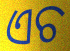
ଏଚ